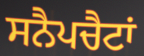
ਸਨੈਪਚੈਟਾਂ